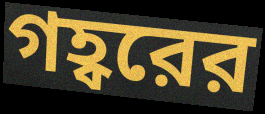
গহ্বরের